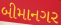
બીમાનગર